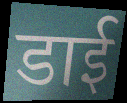
डाई